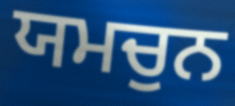
ਯਮਚੁਨ